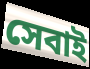
সেবাই